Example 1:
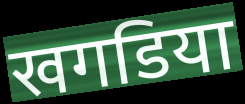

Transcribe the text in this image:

खगडिया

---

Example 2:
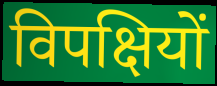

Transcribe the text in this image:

विपक्षियों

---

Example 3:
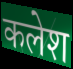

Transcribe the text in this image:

कलेश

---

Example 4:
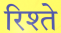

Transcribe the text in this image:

रिश्ते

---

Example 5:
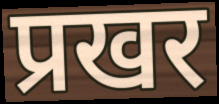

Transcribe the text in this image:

प्रखर